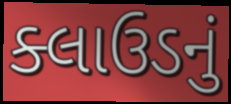
ક્લાઉડનું